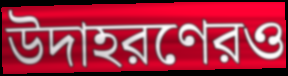
উদাহরণেরও